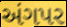
અંગપર